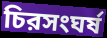
চিরসংঘর্ষ